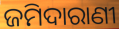
ଜମିଦାରାଣୀ